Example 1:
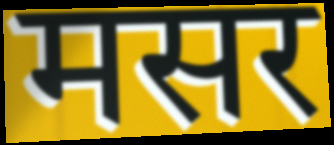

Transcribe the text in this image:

मसर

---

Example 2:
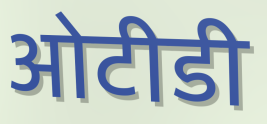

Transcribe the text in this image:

ओटीडी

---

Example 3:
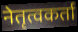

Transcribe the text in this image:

नेतृत्‍वकर्ता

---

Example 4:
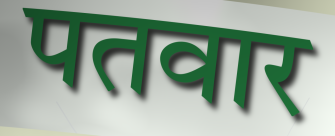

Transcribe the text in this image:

पतवार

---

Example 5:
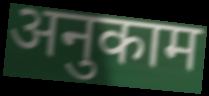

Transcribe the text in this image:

अनुकाम